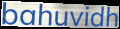
bahuvidh